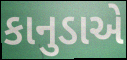
કાનુડાએ